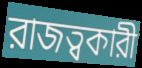
রাজত্বকারী